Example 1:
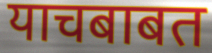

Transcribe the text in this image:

याचबाबत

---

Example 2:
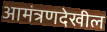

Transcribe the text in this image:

आमंत्रणदेखील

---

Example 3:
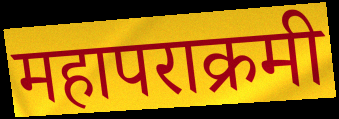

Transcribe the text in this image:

महापराक्रमी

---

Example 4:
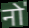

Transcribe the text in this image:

नो॑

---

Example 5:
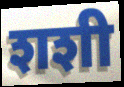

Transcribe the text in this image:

शशी